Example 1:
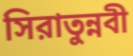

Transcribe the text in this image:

সিরাতুন্নবী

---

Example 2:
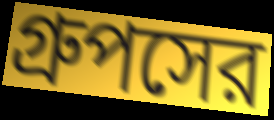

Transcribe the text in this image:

গ্রুপসের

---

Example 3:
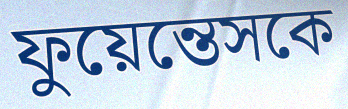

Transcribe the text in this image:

ফুয়েন্তেসকে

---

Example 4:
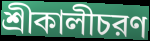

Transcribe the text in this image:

শ্রীকালীচরণ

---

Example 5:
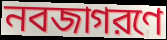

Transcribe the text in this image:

নবজাগরণে